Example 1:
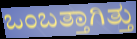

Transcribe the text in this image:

ಒಂಬತ್ತಾಗಿತ್ತು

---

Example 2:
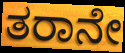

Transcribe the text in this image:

ತರಾನೇ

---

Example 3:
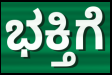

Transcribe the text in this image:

ಭಕ್ತಿಗೆ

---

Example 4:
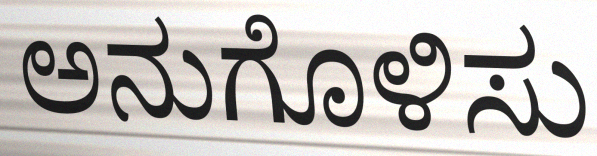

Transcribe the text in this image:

ಅನುಗೊಳಿಸು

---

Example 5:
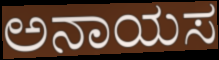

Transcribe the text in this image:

ಅನಾಯಸ